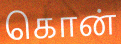
கொன்